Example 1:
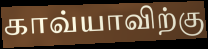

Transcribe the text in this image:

காவ்யாவிற்கு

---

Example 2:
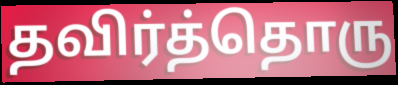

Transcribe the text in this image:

தவிர்த்தொரு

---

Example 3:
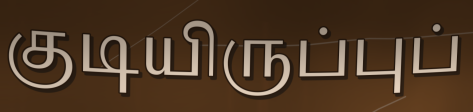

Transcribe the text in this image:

குடியிருப்புப்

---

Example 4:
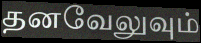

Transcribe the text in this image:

தனவேலுவும்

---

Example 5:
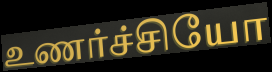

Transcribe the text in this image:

உணர்ச்சியோ